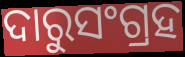
ଦାରୁସଂଗ୍ରହ